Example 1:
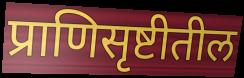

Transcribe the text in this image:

प्राणिसृष्टीतील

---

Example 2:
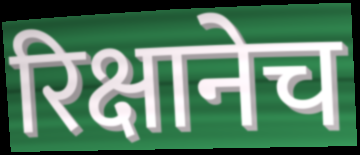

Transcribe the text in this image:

रिक्षानेच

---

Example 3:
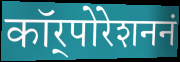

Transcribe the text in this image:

कॉर्पोरेशननं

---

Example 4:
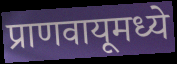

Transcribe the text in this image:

प्राणवायूमध्ये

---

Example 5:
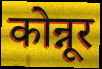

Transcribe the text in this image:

कोन्नूर